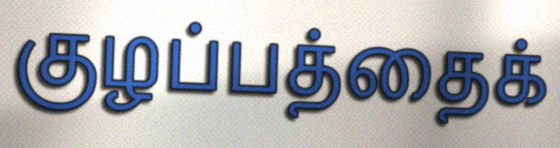
குழப்பத்தைக்